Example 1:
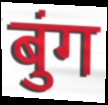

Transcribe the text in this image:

बुंग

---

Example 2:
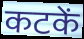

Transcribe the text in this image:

कटकें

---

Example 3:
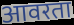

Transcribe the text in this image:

आवरता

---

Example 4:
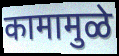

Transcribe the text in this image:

कामामुळे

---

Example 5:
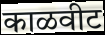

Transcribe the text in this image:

काळवीट